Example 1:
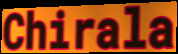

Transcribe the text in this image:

Chirala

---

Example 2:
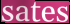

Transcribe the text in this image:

sates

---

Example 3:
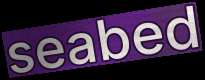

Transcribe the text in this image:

seabed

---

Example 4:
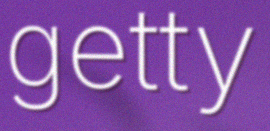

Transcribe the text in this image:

getty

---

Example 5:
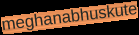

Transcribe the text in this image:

meghanabhuskute